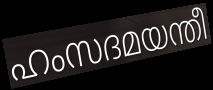
ഹംസദമയന്തീ